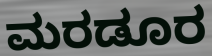
ಮರಡೂರ